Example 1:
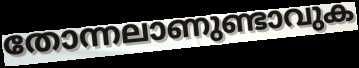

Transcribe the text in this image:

തോന്നലാണുണ്ടാവുക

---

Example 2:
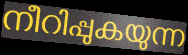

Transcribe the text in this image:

നീറിപ്പുകയുന്ന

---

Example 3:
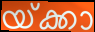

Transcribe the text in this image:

യ്‌ക്കാ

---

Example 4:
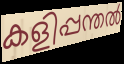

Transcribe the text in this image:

കളിപ്പന്തൽ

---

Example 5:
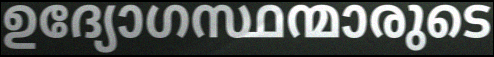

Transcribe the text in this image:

ഉദ്യോഗസ്ഥന്മാരുടെ